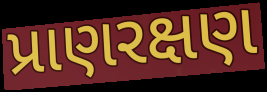
પ્રાણરક્ષણ